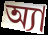
অ্যা